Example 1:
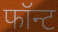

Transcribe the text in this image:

फॉन्ट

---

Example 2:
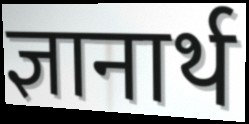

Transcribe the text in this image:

ज्ञानार्थ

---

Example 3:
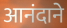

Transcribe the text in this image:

आनंदाने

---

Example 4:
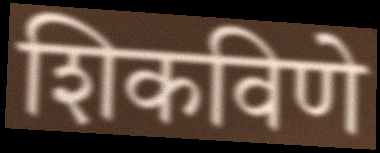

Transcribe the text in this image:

शिकविणे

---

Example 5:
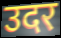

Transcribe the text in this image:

उदर